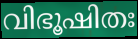
വിഭൂഷിതഃ